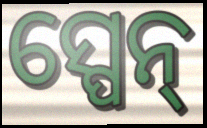
ସ୍ପେନ୍